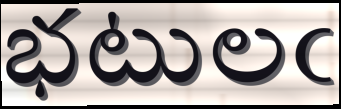
భటులఁ